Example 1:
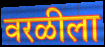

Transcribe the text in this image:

वरळीला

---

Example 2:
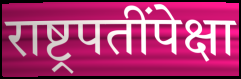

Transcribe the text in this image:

राष्ट्रपतींपेक्षा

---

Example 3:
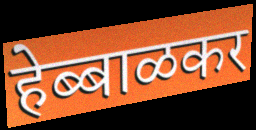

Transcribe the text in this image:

हेब्बाळकर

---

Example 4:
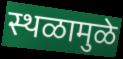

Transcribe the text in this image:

स्थळामुळे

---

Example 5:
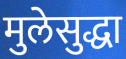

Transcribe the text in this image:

मुलेसुद्धा